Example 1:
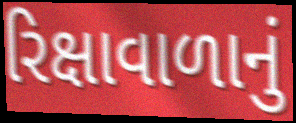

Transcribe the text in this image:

રિક્ષાવાળાનું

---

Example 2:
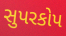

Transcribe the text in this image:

સુપરકોપ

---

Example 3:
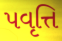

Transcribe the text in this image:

પવૃત્તિ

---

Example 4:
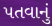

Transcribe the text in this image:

પતવાનું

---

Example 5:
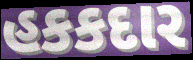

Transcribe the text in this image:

હકકદાર